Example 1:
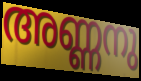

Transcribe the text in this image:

അണ്ണനു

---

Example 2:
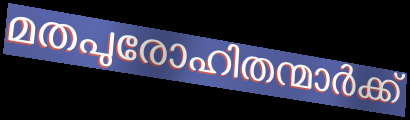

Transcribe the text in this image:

മതപുരോഹിതന്മാർക്ക്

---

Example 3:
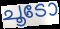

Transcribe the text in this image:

ചൂടോ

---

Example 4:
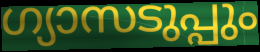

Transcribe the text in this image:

ഗ്യാസടുപ്പും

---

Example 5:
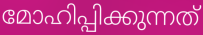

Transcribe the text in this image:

മോഹിപ്പിക്കുന്നത്